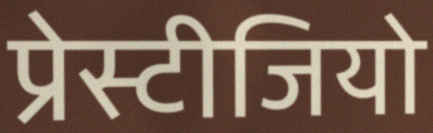
प्रेस्टीजियो